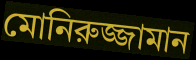
মোনিরুজ্জামান